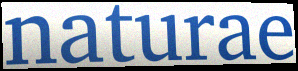
naturae